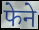
फेने